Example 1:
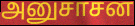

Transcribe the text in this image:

அனுசாசன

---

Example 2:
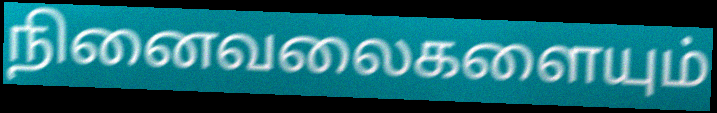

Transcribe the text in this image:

நினைவலைகளையும்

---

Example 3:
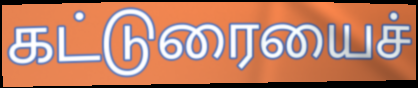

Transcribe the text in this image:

கட்டுரையைச்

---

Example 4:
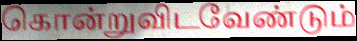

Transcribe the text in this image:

கொன்றுவிடவேண்டும்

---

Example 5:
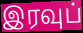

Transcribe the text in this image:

இரவுப்